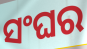
ସଂଘର